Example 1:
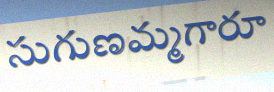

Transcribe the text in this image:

సుగుణమ్మగారూ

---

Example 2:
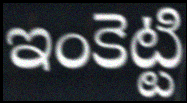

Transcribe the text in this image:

ఇంకెట్టి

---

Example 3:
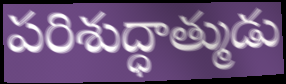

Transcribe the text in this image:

పరిశుద్ధాత్ముడు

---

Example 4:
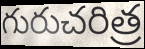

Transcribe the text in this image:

గురుచరిత్ర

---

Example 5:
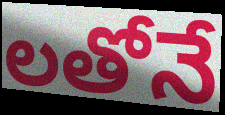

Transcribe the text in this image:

లతోనే